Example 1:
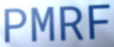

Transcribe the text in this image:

PMRF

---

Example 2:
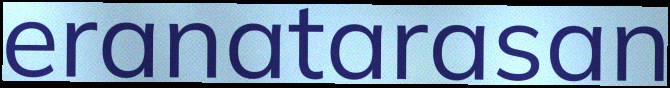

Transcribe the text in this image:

eranatarasan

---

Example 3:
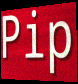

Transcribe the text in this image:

Pip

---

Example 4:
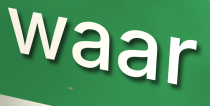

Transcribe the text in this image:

waar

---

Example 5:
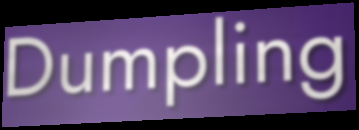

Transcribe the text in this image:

Dumpling